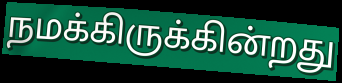
நமக்கிருக்கின்றது